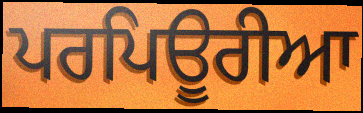
ਪਰਪਿਊਰੀਆ